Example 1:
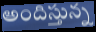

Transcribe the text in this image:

అందిస్తున్న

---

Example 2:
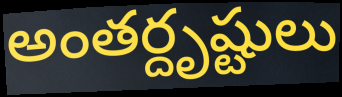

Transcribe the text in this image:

అంతర్దృష్టులు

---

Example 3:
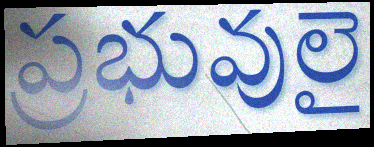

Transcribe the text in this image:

ప్రభువులై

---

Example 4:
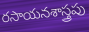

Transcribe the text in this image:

రసాయనశాస్త్రపు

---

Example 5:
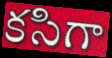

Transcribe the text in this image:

కసిగా